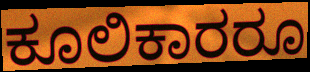
ಕೂಲಿಕಾರರೂ